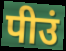
पीउं